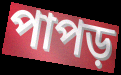
পাপড়